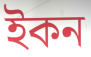
ইকন